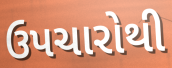
ઉપચારોથી